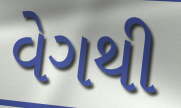
વેગથી